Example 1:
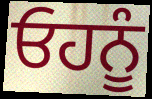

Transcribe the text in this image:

ਓਹਨੂੰ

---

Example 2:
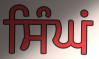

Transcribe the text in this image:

ਸਿੰਘਂ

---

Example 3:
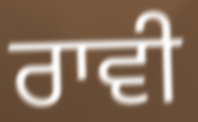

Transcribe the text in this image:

ਰਾਵੀ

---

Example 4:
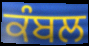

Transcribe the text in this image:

ਕੰਬਲ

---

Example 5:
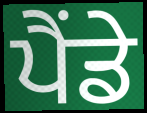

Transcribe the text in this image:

ਪੈਂਡੇ